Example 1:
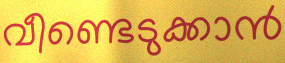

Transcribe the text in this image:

വീണ്ടെടുക്കാൻ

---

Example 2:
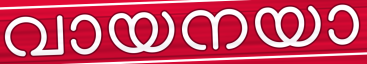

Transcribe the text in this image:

വായനയാ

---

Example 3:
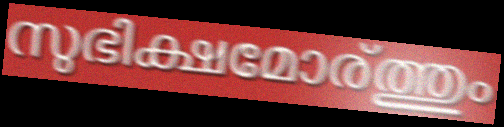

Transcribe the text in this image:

സുഭിക്ഷമോര്ത്തും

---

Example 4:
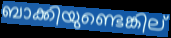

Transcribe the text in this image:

ബാക്കിയുണ്ടെങ്കില്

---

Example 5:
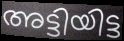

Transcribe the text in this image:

അട്ടിയിട്ട